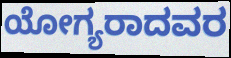
ಯೋಗ್ಯರಾದವರ